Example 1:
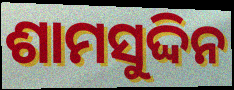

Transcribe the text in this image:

ଶାମସୁଦ୍ଦିନ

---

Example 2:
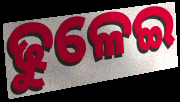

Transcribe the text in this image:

ଢୁଳେଇ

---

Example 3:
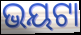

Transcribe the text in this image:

ଭୟଟା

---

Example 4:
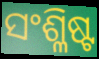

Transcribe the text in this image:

ସଂଶ୍ଳିଷ୍ଟ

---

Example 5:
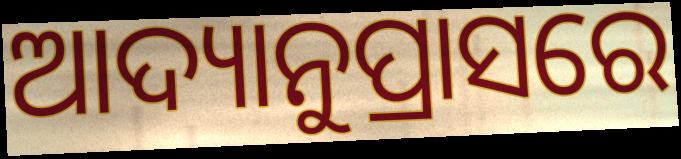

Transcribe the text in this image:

ଆଦ୍ୟାନୁପ୍ରାସରେ